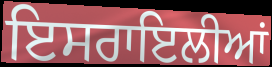
ਇਸਰਾਇਲੀਆਂ